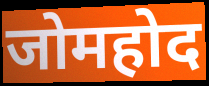
जोमहोद